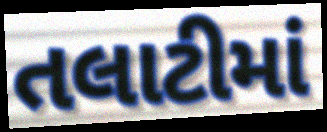
તલાટીમાં